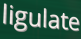
ligulate